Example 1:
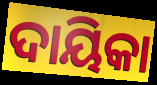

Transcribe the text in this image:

ଦାୟିକା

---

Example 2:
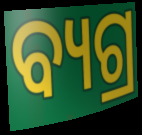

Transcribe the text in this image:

ବ୍ୟଗ୍ର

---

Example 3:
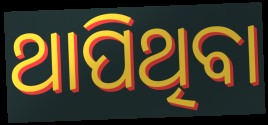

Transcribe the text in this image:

ଥାପିଥିବା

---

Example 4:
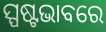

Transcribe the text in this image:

ସ୍ପଷ୍ଟଭାବରେ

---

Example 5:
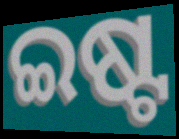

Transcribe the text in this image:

ଇଷ୍ଟ